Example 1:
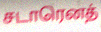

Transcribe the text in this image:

சடாரெனத்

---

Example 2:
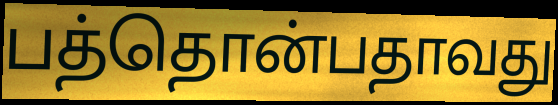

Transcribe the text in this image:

பத்தொன்பதாவது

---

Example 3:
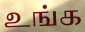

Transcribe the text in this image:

உங்க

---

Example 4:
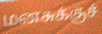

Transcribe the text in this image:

மனசுக்குச்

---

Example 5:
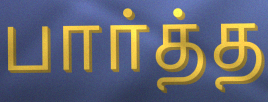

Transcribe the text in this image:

பார்த்த